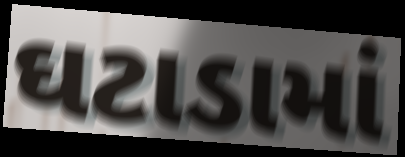
ઘટાડામાં